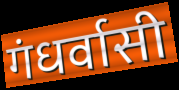
गंधर्वासी